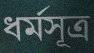
ধর্মসূত্র